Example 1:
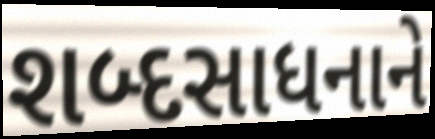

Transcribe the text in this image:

શબ્દસાધનાને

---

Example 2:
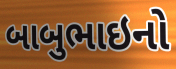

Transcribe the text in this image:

બાબુભાઇનો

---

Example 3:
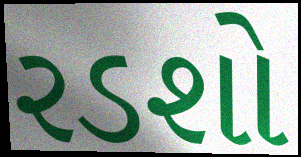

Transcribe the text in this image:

રડશો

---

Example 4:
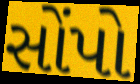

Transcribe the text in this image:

સોંપો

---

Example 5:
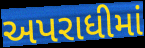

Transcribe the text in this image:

અપરાધીમાં